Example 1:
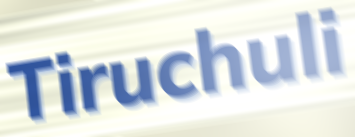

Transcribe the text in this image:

Tiruchuli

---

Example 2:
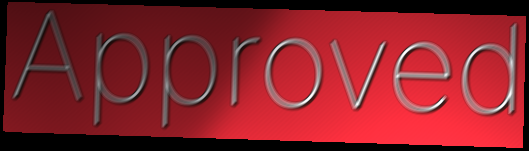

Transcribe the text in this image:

Approved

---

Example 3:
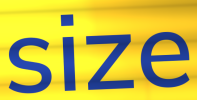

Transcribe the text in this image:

size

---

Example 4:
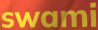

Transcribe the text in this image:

swami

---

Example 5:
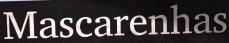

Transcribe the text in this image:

Mascarenhas